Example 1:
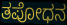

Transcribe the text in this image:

ತಪೋಧನ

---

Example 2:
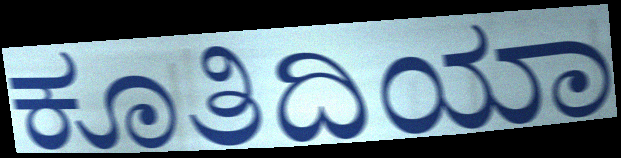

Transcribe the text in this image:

ಕೂತಿದಿಯಾ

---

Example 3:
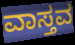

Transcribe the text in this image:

ವಾಸ್ತವ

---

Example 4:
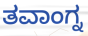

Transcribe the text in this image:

ತವಾಂಗ್ನ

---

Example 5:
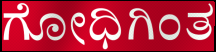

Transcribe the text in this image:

ಗೋಧಿಗಿಂತ